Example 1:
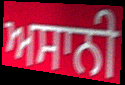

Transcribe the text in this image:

ਅਸਾਨੀ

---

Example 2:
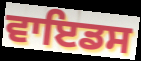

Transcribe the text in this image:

ਵਾਇਡਸ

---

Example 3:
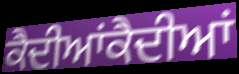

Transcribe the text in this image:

ਕੈਦੀਆਂਕੈਦੀਆਂ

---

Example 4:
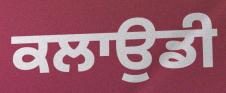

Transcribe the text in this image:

ਕਲਾਉਡੀ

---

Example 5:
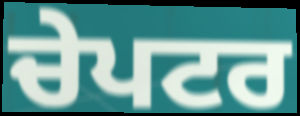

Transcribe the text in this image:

ਚੇਪਟਰ